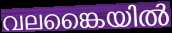
വലങ്കൈയിൽ